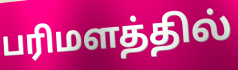
பரிமளத்தில்